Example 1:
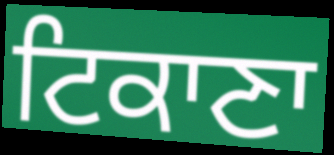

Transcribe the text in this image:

ਟਿਕਾਣਾ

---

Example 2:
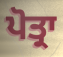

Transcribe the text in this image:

ਪੋਤ੍ਰਾ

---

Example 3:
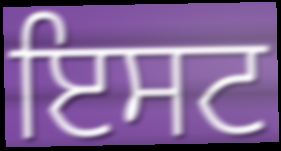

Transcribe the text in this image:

ਇਸਟ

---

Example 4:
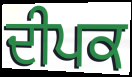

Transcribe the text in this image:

ਦੀਪਕ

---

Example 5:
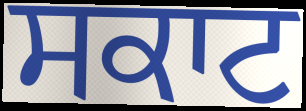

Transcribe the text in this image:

ਸਕਾਟ